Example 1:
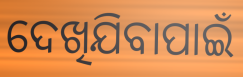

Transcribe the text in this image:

ଦେଖିଯିବାପାଇଁ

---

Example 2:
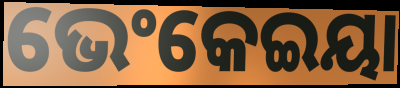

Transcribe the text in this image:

ଭେଂକେଇୟା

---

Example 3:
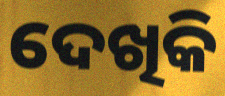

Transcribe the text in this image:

ଦେଖିକି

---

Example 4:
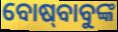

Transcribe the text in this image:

ବୋଷ୍‍ବାବୁଙ୍କ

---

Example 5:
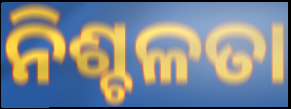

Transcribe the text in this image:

ନିଶ୍ଚଳତା